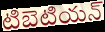
టిబెటియన్